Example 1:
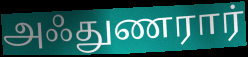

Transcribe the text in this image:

அஃதுணரார்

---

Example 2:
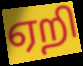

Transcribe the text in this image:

ஏறி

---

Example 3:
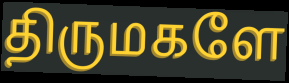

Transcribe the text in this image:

திருமகளே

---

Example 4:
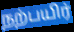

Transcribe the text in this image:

நற்பயிர்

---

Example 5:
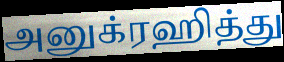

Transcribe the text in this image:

அனுக்ரஹித்து